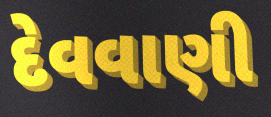
દેવવાણી